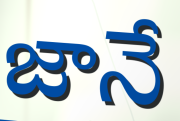
జానే